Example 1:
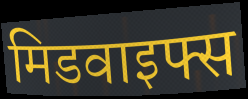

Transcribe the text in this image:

मिडवाइफ्स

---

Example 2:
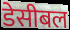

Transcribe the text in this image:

डेसीबल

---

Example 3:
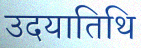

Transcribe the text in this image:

उदयातिथि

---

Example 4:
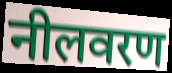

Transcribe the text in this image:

नीलवरण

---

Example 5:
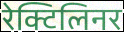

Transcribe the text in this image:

रेक्टिलिनर